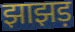
झाझड़